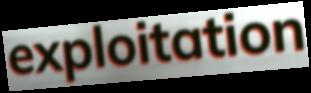
exploitation